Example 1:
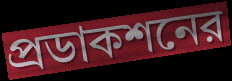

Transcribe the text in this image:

প্রডাকশনের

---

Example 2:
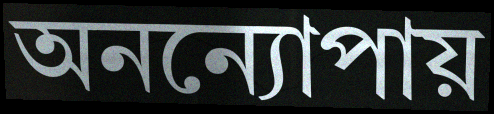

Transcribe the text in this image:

অনন্যোপায়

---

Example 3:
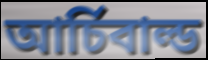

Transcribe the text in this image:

আর্চিবাল্ড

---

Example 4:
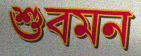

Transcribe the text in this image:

শুবমন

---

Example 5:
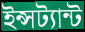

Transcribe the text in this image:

ইন্সট্যান্ট